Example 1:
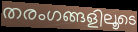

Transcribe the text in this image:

തരംഗങ്ങളിലൂടെ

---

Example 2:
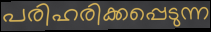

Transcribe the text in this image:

പരിഹരിക്കപ്പെടുന്ന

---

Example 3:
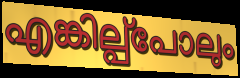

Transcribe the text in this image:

എങ്കില്പ്പോലും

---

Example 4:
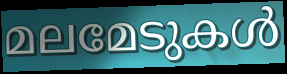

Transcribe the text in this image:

മലമേടുകൾ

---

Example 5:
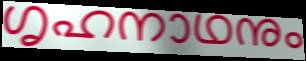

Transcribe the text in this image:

ഗൃഹനാഥനും